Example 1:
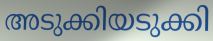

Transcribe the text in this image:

അടുക്കിയടുക്കി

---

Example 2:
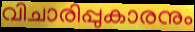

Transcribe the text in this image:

വിചാരിപ്പുകാരനും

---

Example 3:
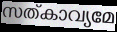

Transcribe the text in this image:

സത്കാവ്യമേ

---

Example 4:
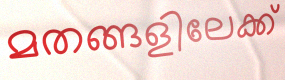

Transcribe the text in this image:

മതങ്ങളിലേക്ക്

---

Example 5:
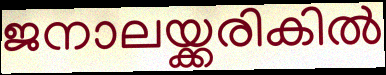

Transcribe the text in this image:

ജനാലയ്ക്കരികിൽ